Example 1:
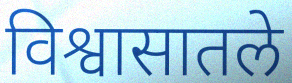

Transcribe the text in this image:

विश्वासातले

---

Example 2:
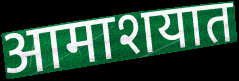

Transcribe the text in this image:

आमाशयात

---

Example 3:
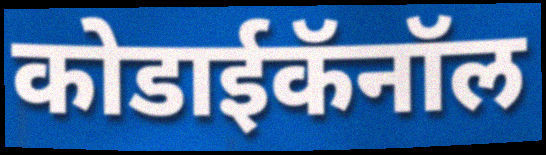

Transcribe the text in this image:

कोडाईकॅनॉल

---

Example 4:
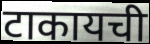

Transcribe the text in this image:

टाकायची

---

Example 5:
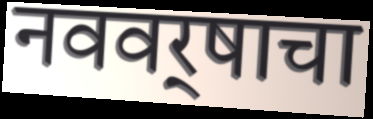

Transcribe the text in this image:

नववर्षाचा